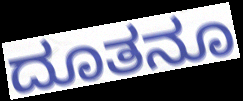
ದೂತನೂ